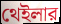
থেইলার